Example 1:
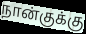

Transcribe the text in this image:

நான்குக்கு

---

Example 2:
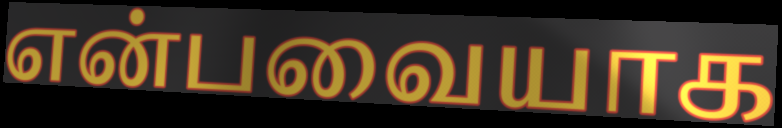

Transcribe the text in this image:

என்பவையாக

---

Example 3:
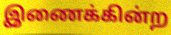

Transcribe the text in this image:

இணைக்கின்ற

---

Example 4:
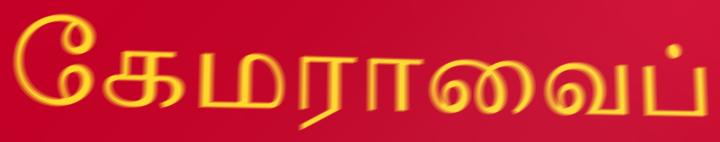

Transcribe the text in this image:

கேமராவைப்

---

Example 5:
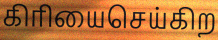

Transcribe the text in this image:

கிரியைசெய்கிற